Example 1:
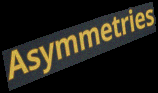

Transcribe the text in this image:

Asymmetries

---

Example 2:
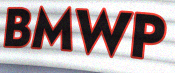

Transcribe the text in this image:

BMWP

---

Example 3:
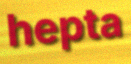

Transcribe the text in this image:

hepta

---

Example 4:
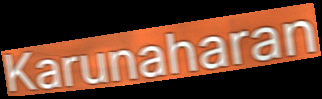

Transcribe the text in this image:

Karunaharan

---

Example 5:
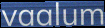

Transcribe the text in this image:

vaalum